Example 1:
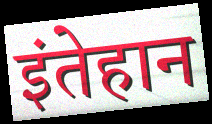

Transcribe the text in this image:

इंतेहान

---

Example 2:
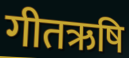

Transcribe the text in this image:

गीतऋषि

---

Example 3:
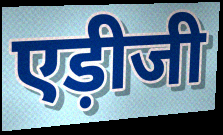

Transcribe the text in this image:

एड़ीजी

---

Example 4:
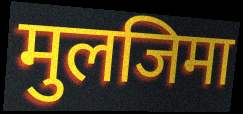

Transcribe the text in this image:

मुलजिमा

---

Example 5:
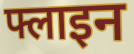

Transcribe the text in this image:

फ्लाइन